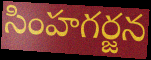
సింహగర్జన